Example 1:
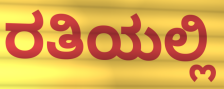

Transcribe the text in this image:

ರತಿಯಲ್ಲಿ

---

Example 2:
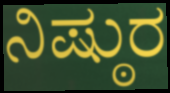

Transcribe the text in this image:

ನಿಷ್ಠುರ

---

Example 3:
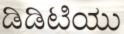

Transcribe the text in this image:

ಡಿಡಿಟಿಯು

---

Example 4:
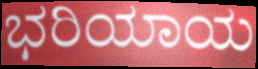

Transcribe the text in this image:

ಭರಿಯಾಯ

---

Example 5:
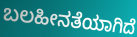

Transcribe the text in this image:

ಬಲಹೀನತೆಯಾಗಿದೆ